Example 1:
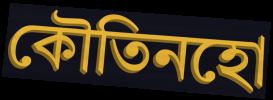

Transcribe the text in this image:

কৌতিনহো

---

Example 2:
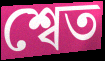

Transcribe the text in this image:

শ্বেত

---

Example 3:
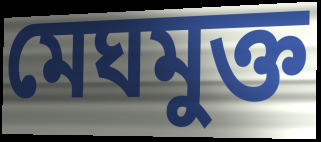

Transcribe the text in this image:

মেঘমুক্ত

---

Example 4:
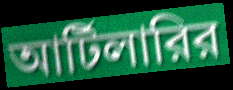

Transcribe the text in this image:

আর্টিলারির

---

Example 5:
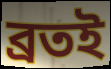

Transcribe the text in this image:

ব্রতই